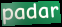
padar